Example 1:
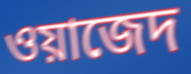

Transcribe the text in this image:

ওয়াজেদ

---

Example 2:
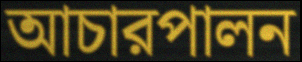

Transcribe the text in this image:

আচারপালন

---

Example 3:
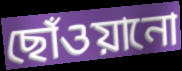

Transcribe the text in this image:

ছোঁওয়ানো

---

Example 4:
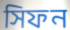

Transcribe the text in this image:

সিফন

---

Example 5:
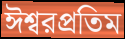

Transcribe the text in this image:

ঈশ্বরপ্রতিম